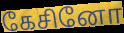
கேசினோ